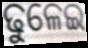
ଢୁଳେଇ